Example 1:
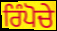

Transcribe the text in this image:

ਰਿੰਪੋਚੇ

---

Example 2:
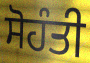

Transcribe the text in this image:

ਸੋਹੰਤੀ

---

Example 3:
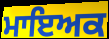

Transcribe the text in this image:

ਮਾਇਅਕ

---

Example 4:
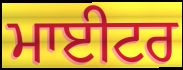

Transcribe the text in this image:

ਮਾਈਟਰ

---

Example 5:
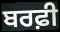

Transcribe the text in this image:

ਬਰਫ਼ੀ